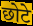
छोटे